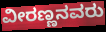
ವೀರಣ್ಣನವರು